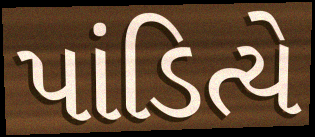
પાંડિત્યે